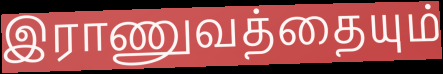
இராணுவத்தையும்